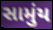
સામુંય